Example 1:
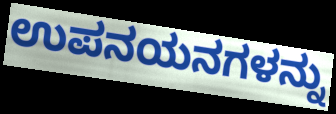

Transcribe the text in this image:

ಉಪನಯನಗಳನ್ನು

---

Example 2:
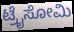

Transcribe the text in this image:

ಟ್ರೈಸೋಮಿ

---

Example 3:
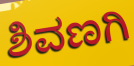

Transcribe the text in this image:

ಶಿವಣಗಿ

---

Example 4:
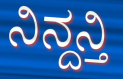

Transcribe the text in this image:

ನಿನ್ದನ್ತಿ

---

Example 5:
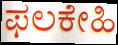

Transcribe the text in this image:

ಫಲಕೇಹಿ